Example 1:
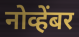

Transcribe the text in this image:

नोव्हेंबर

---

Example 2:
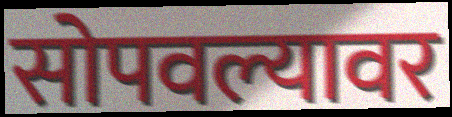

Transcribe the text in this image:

सोपवल्यावर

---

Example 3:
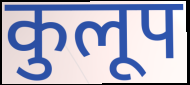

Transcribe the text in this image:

कुलूप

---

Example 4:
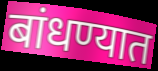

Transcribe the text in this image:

बांधण्‍यात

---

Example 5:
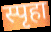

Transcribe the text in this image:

स्पृहा